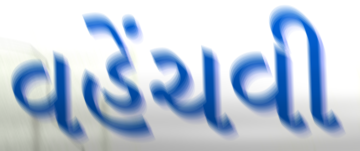
વહેંચવી